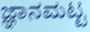
ಜ್ಞಾನಮಟ್ಟ